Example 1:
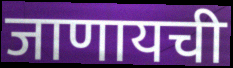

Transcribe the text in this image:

जाणायची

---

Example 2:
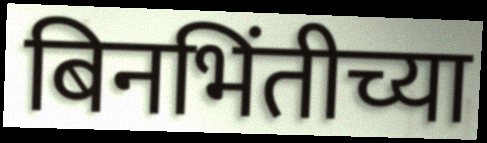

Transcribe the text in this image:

बिनभिंतीच्या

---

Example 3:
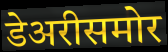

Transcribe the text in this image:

डेअरीसमोर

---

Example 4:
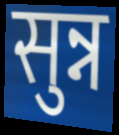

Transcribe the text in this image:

सुन्न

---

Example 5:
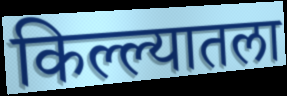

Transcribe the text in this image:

किल्ल्यातला